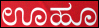
ಊಹೂ